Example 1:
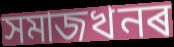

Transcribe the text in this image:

সমাজখনৰ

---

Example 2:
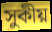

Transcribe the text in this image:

সুকীয়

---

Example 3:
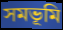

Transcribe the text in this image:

সমভূমি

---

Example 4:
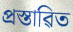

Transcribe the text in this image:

প্ৰস্তাৱিত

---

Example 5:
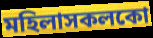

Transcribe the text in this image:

মহিলাসকলকো